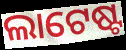
ଲାଟେଷ୍ଟ